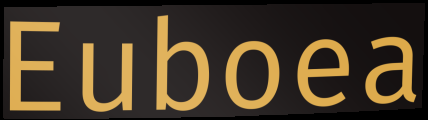
Euboea